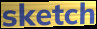
sketch